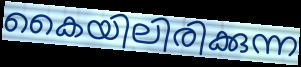
കൈയിലിരിക്കുന്ന